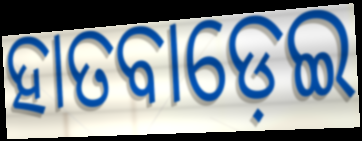
ହାତବାଡ଼େଇ